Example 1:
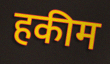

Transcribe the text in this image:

हकीम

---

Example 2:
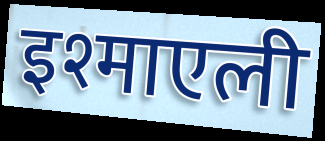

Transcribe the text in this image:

इश्माएली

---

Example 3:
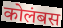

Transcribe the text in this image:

कोलंबस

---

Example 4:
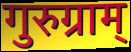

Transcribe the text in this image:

गुरुग्राम्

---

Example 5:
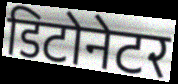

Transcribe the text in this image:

डिटोनेटर